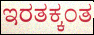
ಇರತಕ್ಕಂತ